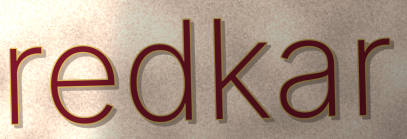
redkar